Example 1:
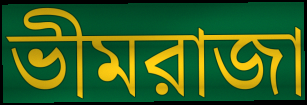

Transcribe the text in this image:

ভীমরাজা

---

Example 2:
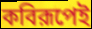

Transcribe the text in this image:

কবিরূপেই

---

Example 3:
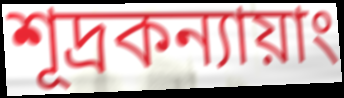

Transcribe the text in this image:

শূদ্রকন্যায়াং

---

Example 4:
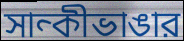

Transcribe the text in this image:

সান্কীভাঙার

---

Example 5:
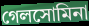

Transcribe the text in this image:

গেলসোমিনা